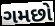
ગમછો